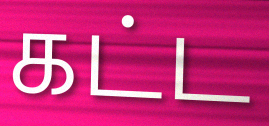
கட்ட